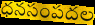
ధనసంపదల